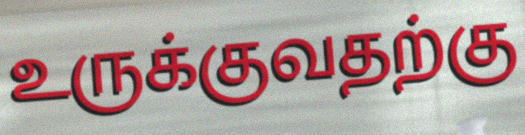
உருக்குவதற்கு